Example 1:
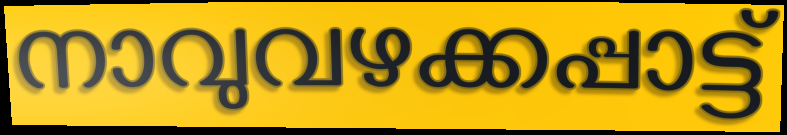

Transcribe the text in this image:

നാവുവഴക്കപ്പാട്ട്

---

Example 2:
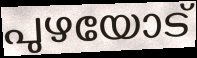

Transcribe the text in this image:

പുഴയോട്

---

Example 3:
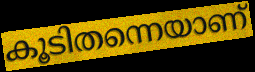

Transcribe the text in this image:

കൂടിതന്നെയാണ്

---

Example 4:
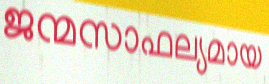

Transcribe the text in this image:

ജന്മസാഫല്യമായ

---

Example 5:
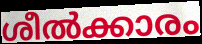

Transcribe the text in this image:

ശീൽക്കാരം